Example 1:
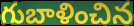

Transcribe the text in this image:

గుబాళించిన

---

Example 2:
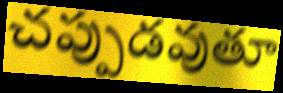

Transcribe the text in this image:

చప్పుడవుతూ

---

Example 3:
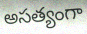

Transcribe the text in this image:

అసత్యంగా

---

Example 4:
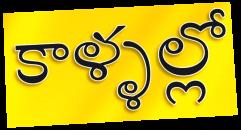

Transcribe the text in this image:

కాళ్ళల్లో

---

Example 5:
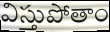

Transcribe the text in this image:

విస్తుపోతాం